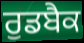
ਰੁਡਬੈਕ